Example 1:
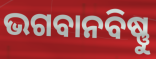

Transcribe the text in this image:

ଭଗବାନବିଷ୍ଣୁ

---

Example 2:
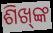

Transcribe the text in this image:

ଶିଖ୍‍ଙ୍କ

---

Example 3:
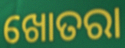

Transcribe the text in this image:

ଖୋତରା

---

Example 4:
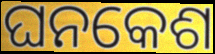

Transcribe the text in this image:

ଘନକେଶ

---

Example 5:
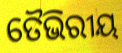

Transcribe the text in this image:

ତୈଭିରୀୟ